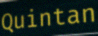
Quintan